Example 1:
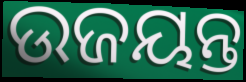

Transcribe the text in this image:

ଉଜୟନ୍ତ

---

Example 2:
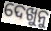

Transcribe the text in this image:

ଦେଖୁନୁ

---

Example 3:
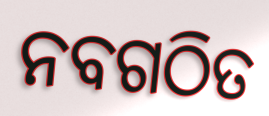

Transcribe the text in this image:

ନବଗଠିତ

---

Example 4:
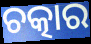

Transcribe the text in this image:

ଚତ୍କାର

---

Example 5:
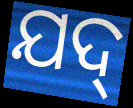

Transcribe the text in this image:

ଯଦ୍